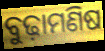
ବୁଢ଼ାମଣିଷ